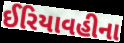
ઈરિયાવહીના